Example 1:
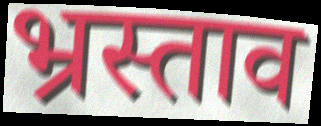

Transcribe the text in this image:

भ्रस्ताव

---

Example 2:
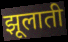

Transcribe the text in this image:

झूलाती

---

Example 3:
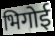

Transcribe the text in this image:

भिगोई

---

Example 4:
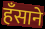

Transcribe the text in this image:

हँसाने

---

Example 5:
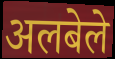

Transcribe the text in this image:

अलबेले